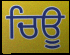
ਚਿਊ